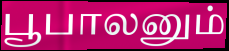
பூபாலனும்